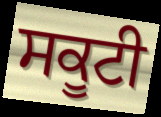
ਸਕੂਟੀ